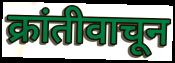
क्रांतीवाचून